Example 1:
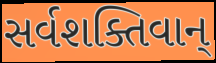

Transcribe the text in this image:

સર્વશક્તિવાન્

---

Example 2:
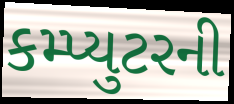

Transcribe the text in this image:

કમ્પ્યુટરની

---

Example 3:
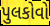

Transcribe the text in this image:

પુલકોવો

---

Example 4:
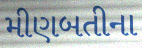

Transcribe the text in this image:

મીણબતીના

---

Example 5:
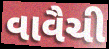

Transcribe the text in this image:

વાવૈચી